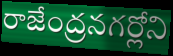
రాజేంద్రనగర్లోని